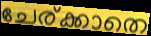
ചേര്ക്കാതെ